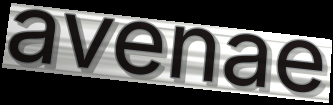
avenae